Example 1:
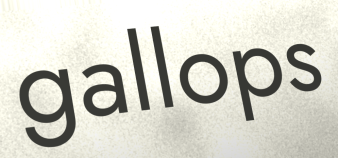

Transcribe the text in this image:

gallops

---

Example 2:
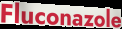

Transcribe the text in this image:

Fluconazole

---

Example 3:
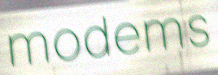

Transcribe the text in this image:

modems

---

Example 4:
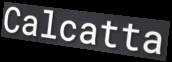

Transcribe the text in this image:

Calcatta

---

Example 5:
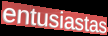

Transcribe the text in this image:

entusiastas